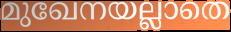
മുഖേനയല്ലാതെ